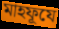
মাহফূযে